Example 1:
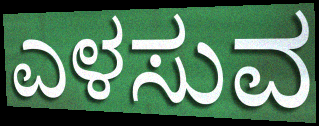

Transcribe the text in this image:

ಎಳಸುವ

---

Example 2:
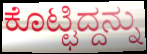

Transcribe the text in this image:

ಕೊಟ್ಟಿದ್ದನ್ನು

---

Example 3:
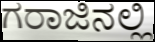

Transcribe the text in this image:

ಗರಾಜಿನಲ್ಲಿ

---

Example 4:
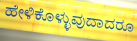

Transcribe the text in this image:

ಹೇಳಿಕೊಳ್ಳುವುದಾದರೂ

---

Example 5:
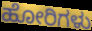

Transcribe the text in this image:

ಹೋರಿಗಳು